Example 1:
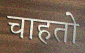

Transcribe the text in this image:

चाहतो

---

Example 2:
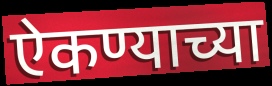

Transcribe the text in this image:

ऐकण्याच्या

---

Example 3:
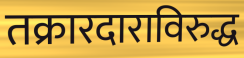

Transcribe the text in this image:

तक्रारदाराविरुद्ध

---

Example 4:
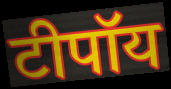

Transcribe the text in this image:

टीपॉय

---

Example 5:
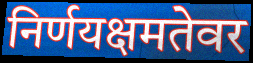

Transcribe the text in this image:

निर्णयक्षमतेवर